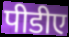
पीडीए